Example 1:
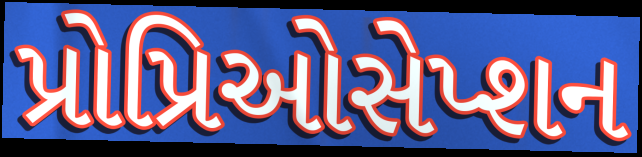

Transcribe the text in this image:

પ્રોપ્રિઓસેપ્શન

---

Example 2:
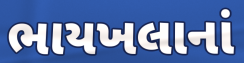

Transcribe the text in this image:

ભાયખલાનાં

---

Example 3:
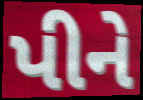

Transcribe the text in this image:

પીને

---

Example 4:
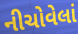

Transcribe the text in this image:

નીચોવેલાં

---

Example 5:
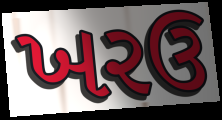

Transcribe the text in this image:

ખરઉ